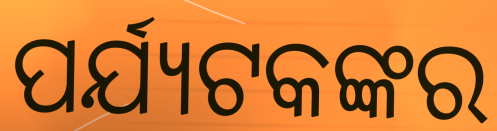
ପର୍ଯ୍ୟଟକଙ୍କର